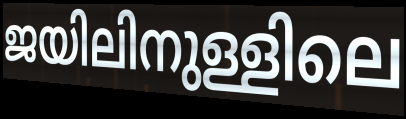
ജയിലിനുള്ളിലെ